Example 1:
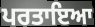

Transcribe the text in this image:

ਪਰਤਾਇਆ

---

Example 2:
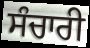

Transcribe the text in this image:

ਸੰਚਾਰੀ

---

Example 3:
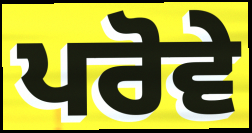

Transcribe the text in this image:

ਪਰੋਵੇ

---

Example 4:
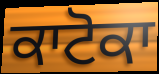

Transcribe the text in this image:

ਕਾਟੋਕਾ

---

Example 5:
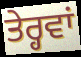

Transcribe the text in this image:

ਤੇਰ੍ਹਵਾਂ